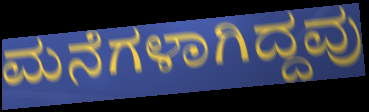
ಮನೆಗಳಾಗಿದ್ದವು